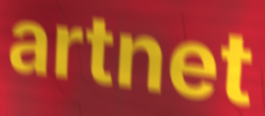
artnet